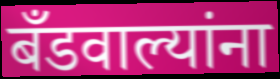
बँडवाल्यांना